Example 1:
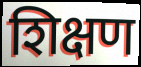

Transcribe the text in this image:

शिक्षण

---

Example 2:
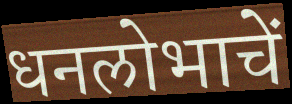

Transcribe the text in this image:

धनलोभाचें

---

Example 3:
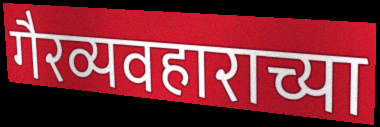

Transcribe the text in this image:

गैरव्यवहाराच्या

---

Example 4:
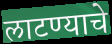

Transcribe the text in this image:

लाटण्याचे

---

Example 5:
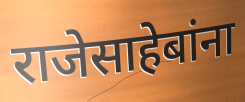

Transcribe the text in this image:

राजेसाहेबांना